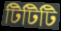
টিটিটি